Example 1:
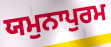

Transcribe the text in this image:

ਯਮੁਨਾਪੁਰਮ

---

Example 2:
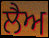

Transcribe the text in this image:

ਲੈਅ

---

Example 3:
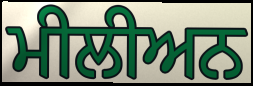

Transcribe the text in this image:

ਮੀਲੀਅਨ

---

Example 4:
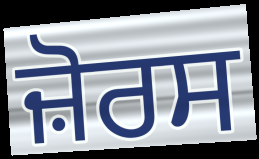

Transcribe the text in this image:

ਜ਼ੋਰਸ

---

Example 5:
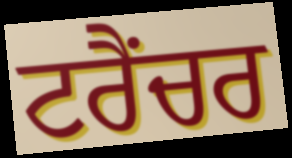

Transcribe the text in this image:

ਟਰੈਂਚਰ